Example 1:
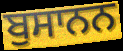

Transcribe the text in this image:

ਬੁਸਾਨਨ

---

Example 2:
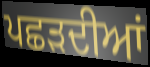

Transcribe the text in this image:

ਪਛੜਦੀਆਂ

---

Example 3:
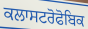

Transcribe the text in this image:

ਕਲਾਸਟਰੋਫੋਬਿਕ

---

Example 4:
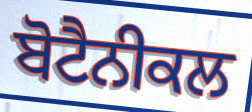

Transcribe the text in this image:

ਬੋਟੈਨੀਕਲ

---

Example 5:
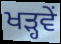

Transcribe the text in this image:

ਖੜ੍ਹਵੇਂ